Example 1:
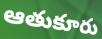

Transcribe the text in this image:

ఆతుకూరు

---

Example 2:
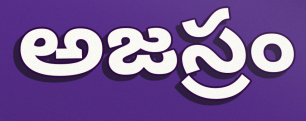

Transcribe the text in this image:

అజస్రం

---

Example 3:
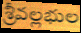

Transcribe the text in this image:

శ్రీవల్లభుల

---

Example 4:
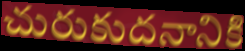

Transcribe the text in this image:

చురుకుదనానికి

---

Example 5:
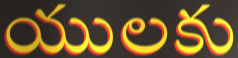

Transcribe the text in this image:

యులకు